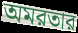
অমরতার